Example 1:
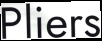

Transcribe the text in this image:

Pliers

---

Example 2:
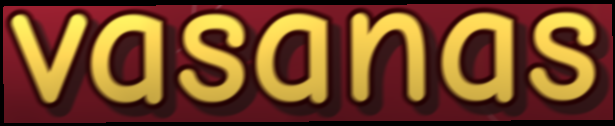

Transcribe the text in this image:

vasanas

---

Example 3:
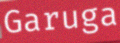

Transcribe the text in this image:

Garuga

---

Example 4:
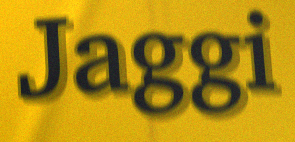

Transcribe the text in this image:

Jaggi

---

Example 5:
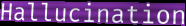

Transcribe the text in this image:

Hallucination